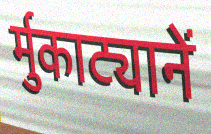
र्मुकाट्यानें